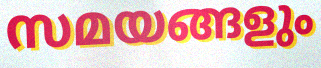
സമയങ്ങളും